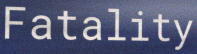
Fatality